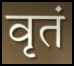
वृतं